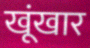
खूंखार